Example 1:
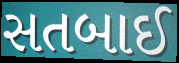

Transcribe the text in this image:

સતબાઈ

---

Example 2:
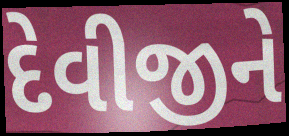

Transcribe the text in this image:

દેવીજીને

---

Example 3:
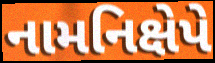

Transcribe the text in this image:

નામનિક્ષેપે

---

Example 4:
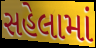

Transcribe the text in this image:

સહેલામાં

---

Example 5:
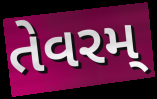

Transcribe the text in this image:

તેવરમ્